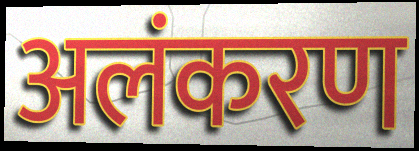
अलंकरण